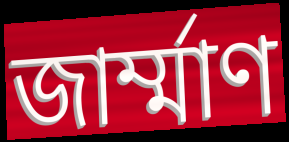
জার্ম্মাণ